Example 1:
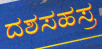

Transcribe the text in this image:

ದಶಸಹಸ್ರ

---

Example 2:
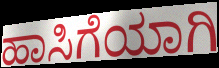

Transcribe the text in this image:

ಹಾಸಿಗೆಯಾಗಿ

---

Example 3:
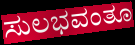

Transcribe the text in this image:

ಸುಲಭವಂತೂ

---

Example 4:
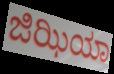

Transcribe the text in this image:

ಜಿಝಿಯಾ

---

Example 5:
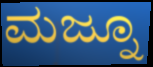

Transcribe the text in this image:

ಮಜ್ನೂ